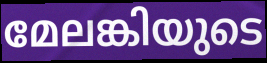
മേലങ്കിയുടെ